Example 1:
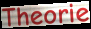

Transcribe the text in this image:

Theorie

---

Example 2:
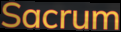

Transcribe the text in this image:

Sacrum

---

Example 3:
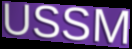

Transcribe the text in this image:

USSM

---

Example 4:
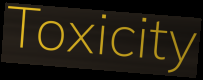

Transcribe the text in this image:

Toxicity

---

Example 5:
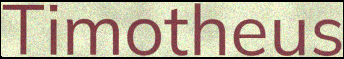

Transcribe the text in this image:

Timotheus